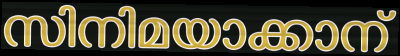
സിനിമയാക്കാന്